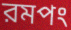
রমপং